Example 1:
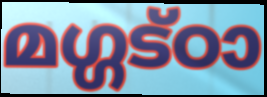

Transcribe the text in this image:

മഗ്ഗട്ഠാ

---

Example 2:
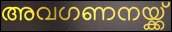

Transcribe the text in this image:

അവഗണനയ്ക്ക്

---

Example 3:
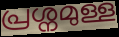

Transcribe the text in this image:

പ്രശ്നമുള്ള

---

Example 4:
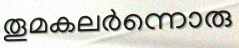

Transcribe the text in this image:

തൂമകലർന്നൊരു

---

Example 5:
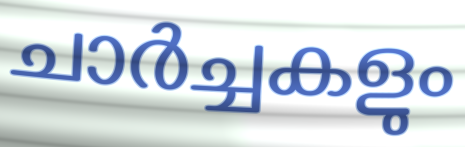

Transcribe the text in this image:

ചാർച്ചകളും